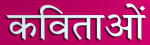
कविताओं